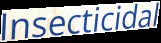
Insecticidal